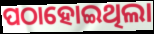
ପଠାହୋଇଥିଲା